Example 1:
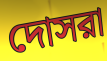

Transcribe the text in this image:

দোসরা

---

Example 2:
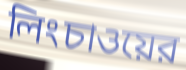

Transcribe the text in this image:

লিংচাওয়ের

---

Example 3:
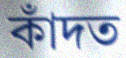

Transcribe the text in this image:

কাঁদত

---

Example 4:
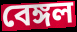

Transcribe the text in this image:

বেঙ্গল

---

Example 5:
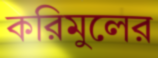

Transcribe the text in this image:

করিমুলের